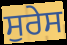
ਸੁਰੇਸ